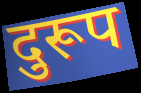
दुरूप